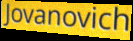
Jovanovich